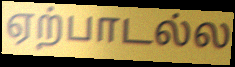
ஏற்பாடல்ல